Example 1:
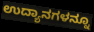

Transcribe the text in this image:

ಉದ್ಯಾನಗಳನ್ನೂ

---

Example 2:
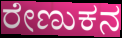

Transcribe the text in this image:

ರೇಣುಕನ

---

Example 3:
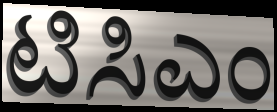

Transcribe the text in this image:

ಟಿಸಿಎಂ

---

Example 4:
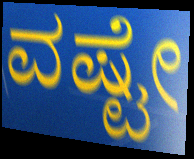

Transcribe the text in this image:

ವಷ್ಟೇ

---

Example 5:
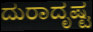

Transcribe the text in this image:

ದುರಾದೃಷ್ಟ